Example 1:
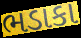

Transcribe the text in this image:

ભડાકા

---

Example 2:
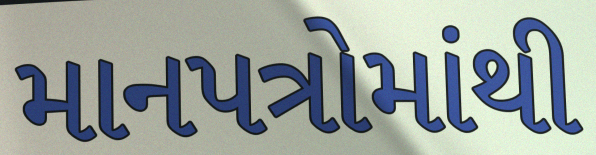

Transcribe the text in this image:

માનપત્રોમાંથી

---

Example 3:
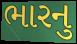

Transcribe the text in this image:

ભારનુ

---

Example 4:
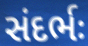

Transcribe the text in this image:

સંદર્ભઃ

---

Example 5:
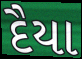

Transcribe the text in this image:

દૈયા